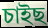
চাইছ